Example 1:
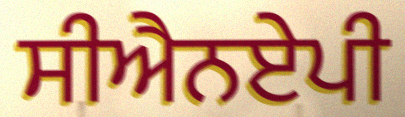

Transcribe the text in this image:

ਸੀਐਨਏਪੀ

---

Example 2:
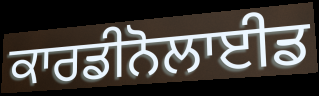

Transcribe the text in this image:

ਕਾਰਡੀਨੋਲਾਈਡ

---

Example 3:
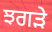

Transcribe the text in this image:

ਝਗਡ਼ੇ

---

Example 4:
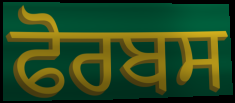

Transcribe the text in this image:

ਫੋਰਬਸ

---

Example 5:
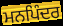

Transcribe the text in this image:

ਮਨਪਿੰਦਰ